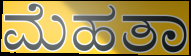
ಮೆಹತಾ